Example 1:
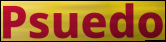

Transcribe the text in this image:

Psuedo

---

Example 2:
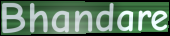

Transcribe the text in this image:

Bhandare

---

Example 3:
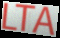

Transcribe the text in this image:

LTA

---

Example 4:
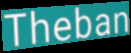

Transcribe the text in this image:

Theban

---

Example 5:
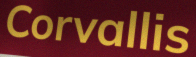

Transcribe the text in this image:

Corvallis